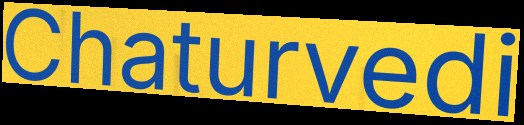
Chaturvedi